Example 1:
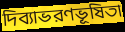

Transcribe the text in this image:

দিব্যাভরণভূষিতা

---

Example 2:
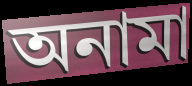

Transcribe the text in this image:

অনামা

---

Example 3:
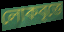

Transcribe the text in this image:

লোকবৃত্তে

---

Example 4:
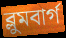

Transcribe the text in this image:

ব্লুমবার্গ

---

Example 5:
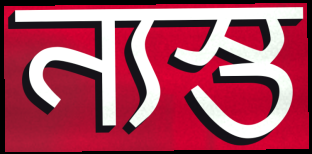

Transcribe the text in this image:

ন্যস্ত